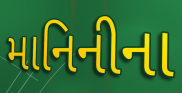
માનિનીના